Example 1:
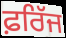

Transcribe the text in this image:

ਫ਼ਰਿੱਜ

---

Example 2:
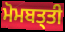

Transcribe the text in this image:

ਮੋਮਬਤ੍ਤੀ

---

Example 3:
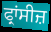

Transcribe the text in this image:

ਫ੍ਰਾਂਸੀਜ਼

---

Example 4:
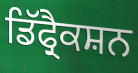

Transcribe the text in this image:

ਡਿੱਫ੍ਰੈਕਸ਼ਨ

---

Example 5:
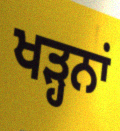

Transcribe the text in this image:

ਖੜ੍ਹਨਾਂ